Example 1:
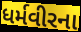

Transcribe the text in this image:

ધર્મવીરના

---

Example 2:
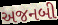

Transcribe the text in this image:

અજનબી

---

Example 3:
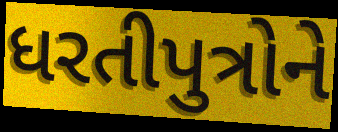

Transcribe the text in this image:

ધરતીપુત્રોને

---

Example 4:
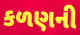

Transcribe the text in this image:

કળણની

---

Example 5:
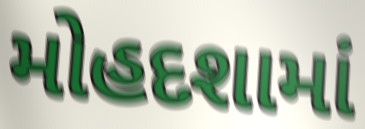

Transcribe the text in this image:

મોહદશામાં